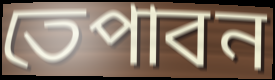
তেপাবন